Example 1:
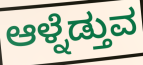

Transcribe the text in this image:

ಆಳ್ನೆಡ್ತುವ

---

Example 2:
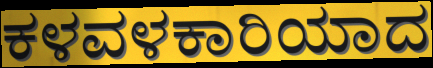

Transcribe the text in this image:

ಕಳವಳಕಾರಿಯಾದ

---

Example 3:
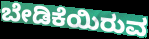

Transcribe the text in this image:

ಬೇಡಿಕೆಯಿರುವ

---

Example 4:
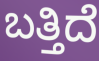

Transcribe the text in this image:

ಬತ್ತಿದೆ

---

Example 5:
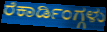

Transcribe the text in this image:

ರೆಕಾರ್ಡಿಂಗ್ಗಳು